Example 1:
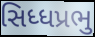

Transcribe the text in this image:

સિધ્ધપ્રભુ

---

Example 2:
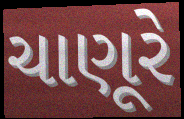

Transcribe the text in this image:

ચાણૂરે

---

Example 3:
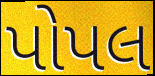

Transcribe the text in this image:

પોપલ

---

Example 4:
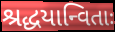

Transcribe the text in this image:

શ્રદ્ધયાન્વિતાઃ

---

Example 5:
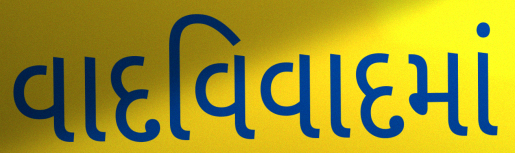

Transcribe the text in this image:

વાદવિવાદમાં